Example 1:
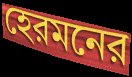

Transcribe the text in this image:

হেরমনের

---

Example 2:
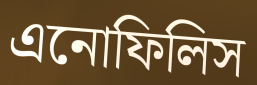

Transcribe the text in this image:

এনোফিলিস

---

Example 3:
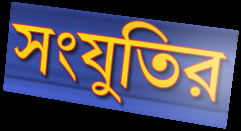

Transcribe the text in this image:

সংযুতির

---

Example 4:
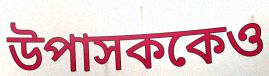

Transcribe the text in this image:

উপাসককেও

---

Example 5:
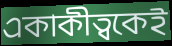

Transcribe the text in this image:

একাকীত্বকেই